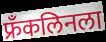
फ्रॅंकलिनला